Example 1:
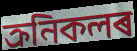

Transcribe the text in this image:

ক্ৰনিকলৰ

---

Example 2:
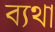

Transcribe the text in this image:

ব্যথা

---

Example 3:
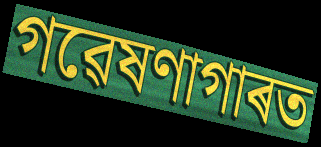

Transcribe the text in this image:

গৱেষণাগাৰত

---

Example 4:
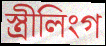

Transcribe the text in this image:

স্ত্ৰীলিংগ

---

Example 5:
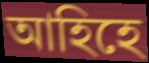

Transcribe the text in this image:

আহিহে